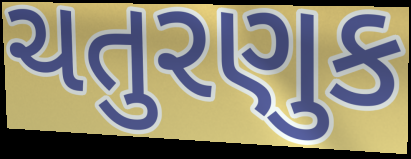
ચતુરણુક